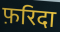
फ़रिदा